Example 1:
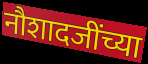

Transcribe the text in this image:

नौशादजींच्या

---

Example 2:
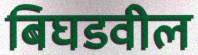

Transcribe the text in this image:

बिघडवील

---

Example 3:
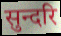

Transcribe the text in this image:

सुन्दरि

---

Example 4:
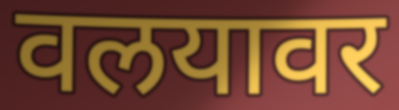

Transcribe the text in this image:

वलयावर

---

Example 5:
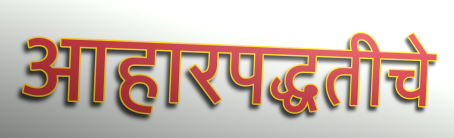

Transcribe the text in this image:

आहारपद्धतीचे